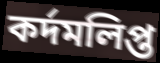
কর্দমলিপ্ত